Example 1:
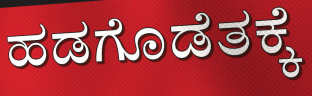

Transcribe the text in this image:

ಹಡಗೊಡೆತಕ್ಕೆ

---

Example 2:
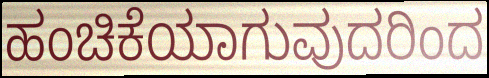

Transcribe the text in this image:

ಹಂಚಿಕೆಯಾಗುವುದರಿಂದ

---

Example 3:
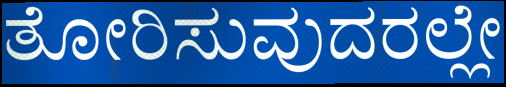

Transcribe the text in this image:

ತೋರಿಸುವುದರಲ್ಲೇ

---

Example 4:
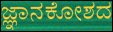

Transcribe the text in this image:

ಜ್ಞಾನಕೋಶದ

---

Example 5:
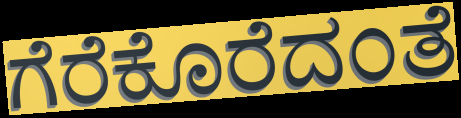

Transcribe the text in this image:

ಗೆರೆಕೊರೆದಂತೆ